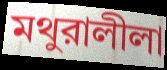
মথুরালীলা